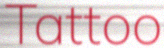
Tattoo